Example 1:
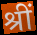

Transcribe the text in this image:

श्रीं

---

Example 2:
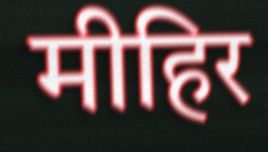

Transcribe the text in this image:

मीहिर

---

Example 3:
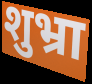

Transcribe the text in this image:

शुभ्रा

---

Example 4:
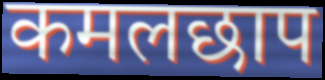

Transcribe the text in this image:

कमलछाप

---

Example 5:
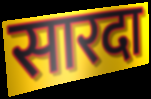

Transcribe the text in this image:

सारदा